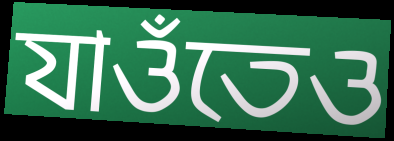
যাওঁতেও